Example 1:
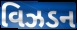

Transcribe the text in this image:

વિઝડન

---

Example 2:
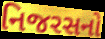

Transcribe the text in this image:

નિજરસનો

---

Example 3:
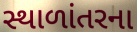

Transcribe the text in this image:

સ્થાળાંતરના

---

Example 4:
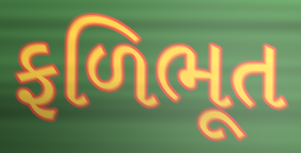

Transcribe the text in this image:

ફળિભૂત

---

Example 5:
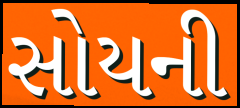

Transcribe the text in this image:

સોયની